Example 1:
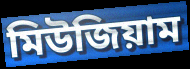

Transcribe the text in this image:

মিউজিয়াম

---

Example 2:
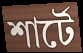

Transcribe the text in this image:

শার্টে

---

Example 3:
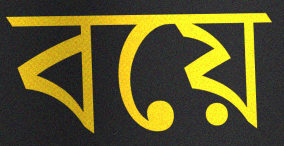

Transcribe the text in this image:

বয়ে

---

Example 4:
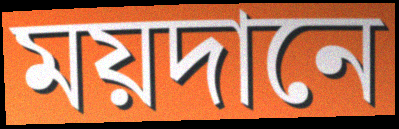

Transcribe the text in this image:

ময়দানে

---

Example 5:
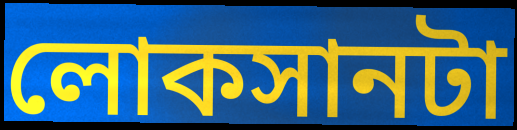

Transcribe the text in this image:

লোকসানটা